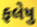
ફલેષુ